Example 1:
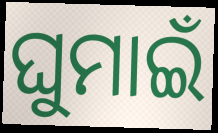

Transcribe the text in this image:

ଘୁମାଇଁ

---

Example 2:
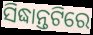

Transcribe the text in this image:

ସିଦ୍ଧାନ୍ତଟିରେ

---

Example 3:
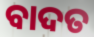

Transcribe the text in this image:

ବାଦତ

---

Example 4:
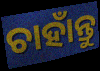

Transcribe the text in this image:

ଚାହାଁନ୍ତୁ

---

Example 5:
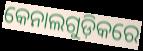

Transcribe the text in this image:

କେନାଲଗୁଡ଼ିକରେ